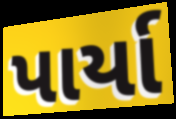
પાર્યા